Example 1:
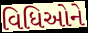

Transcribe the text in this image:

વિધિઓને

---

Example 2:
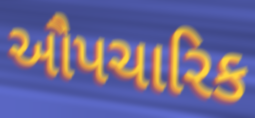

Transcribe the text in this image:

ઔપચારિક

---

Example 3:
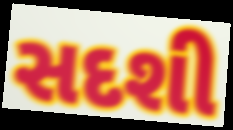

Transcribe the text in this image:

સદશી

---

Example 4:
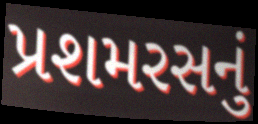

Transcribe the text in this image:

પ્રશમરસનું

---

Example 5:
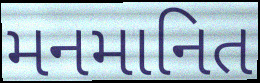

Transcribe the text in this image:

મનમાનિત